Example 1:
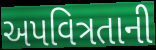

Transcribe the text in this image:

અપવિત્રતાની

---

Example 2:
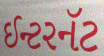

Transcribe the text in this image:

ઈન્ટરનૅટ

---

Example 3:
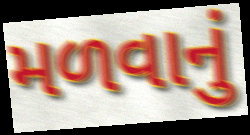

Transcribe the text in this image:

મળવાનું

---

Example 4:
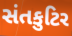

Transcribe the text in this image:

સંતકુટિર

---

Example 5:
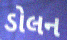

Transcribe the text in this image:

ડોલન